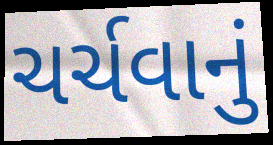
ચર્ચવાનું